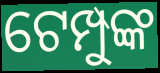
ଟେମ୍ପୁଙ୍କ